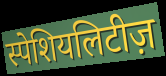
स्पेशियलिटीज़